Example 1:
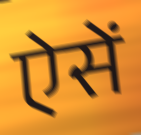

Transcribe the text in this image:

ऐसें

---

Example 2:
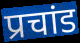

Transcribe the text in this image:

प्रचांड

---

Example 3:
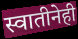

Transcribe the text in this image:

स्वातीनेही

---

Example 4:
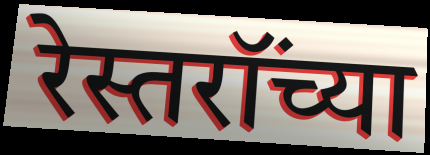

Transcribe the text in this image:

रेस्तरॉंच्या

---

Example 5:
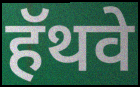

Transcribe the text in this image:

हॅथवे